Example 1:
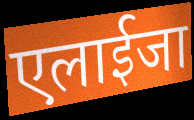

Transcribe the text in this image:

एलाईजा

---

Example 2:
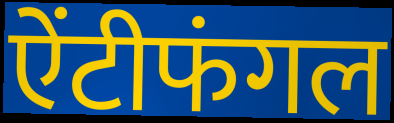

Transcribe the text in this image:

ऐंटीफंगल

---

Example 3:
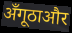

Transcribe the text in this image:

अँगूठाऔर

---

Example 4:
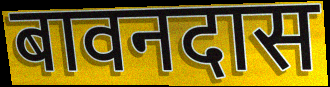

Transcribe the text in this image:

बावनदास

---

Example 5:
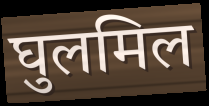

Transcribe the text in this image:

घुलमिल